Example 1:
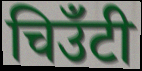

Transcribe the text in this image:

चिउँटी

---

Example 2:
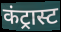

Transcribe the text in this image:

कंट्रास्ट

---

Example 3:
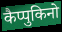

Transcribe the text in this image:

कैप्पुकिनो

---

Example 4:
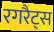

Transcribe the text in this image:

रगरैट्स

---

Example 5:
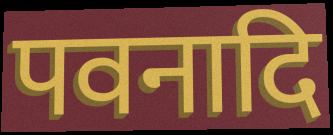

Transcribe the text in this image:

पवनादि